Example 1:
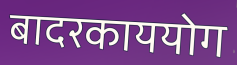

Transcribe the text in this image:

बादरकाययोग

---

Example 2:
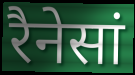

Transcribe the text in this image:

रैनेसां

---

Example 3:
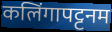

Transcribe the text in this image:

कलिंगापट्टनम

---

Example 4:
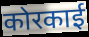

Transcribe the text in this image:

कोरकाई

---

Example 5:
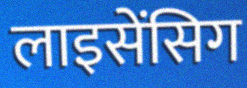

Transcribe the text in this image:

लाइसेंसिग